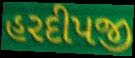
હરદીપજી